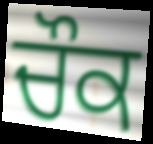
ਚੌਕ